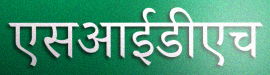
एसआईडीएच